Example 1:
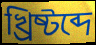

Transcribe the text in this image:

খ্রিষ্টব্দে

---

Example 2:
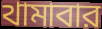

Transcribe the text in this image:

থামাবার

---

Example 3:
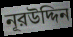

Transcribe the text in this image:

নূরউদ্দিন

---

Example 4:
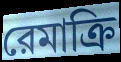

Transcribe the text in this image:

রেমাক্রি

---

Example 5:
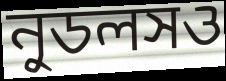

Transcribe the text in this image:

নুডলসও